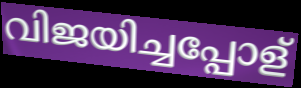
വിജയിച്ചപ്പോള്